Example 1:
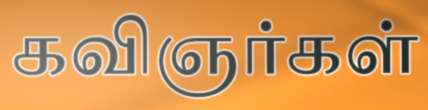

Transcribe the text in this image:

கவிஞர்கள்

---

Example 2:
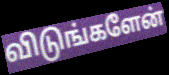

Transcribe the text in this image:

விடுங்களேன்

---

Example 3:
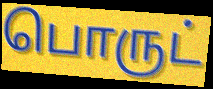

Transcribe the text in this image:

பொருட்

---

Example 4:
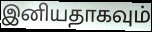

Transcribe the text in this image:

இனியதாகவும்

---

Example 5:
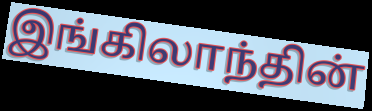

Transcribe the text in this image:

இங்கிலாந்தின்